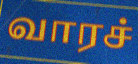
வாரச்